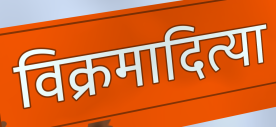
विक्रमादित्या